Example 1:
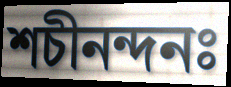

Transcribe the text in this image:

শচীনন্দনঃ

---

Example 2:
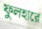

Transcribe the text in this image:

ফুলহারে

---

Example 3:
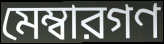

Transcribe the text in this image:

মেম্বারগণ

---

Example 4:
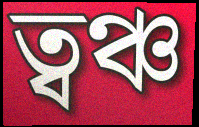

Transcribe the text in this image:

ত্বঞ্চ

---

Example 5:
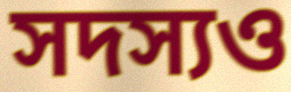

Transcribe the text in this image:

সদস্যও